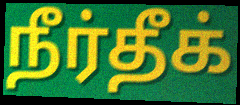
நீர்தீக்